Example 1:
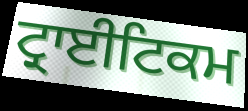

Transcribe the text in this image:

ਟ੍ਰਾਈਟਿਕਮ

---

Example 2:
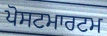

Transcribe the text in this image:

ਪੋਸਟਮਾਰਟਮ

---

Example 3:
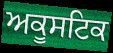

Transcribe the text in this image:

ਅਕੂਸਟਿਕ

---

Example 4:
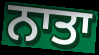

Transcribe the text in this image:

ਨਾਤਾ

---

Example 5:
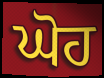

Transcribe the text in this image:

ਘੋਹ